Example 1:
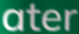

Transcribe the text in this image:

ater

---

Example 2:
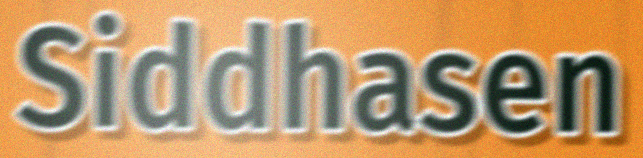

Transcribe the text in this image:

Siddhasen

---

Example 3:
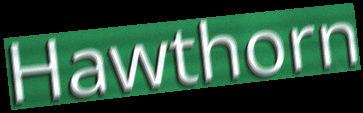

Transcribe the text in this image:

Hawthorn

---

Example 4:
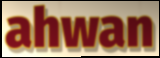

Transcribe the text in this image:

ahwan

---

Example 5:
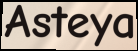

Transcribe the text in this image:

Asteya